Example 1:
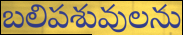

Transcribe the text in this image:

బలిపశువులను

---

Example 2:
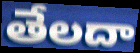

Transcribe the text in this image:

తేలదా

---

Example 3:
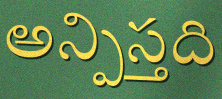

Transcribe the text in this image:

అన్పిస్తది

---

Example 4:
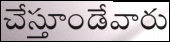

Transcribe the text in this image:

చేస్తూండేవారు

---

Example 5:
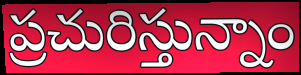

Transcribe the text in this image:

ప్రచురిస్తున్నాం